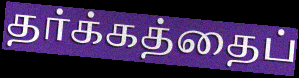
தர்க்கத்தைப்